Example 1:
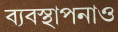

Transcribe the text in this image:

ব্যবস্থাপনাও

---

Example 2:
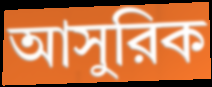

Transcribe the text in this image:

আসুরিক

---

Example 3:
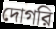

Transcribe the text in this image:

দোগরি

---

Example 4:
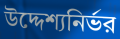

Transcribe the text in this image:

উদ্দেশ্যনির্ভর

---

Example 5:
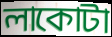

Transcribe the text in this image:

লাকোটা